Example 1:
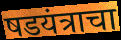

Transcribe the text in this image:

षडयंत्राचा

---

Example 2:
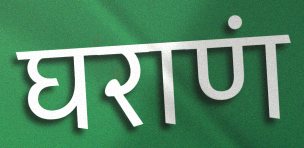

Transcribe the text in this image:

घराणं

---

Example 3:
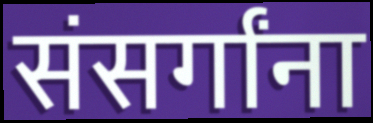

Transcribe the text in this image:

संसर्गांना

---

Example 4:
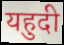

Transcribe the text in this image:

यहुदी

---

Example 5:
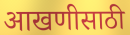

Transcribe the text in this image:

आखणीसाठी